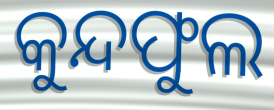
କୁନ୍ଦଫୁଲ